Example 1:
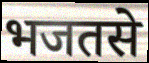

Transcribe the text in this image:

भजतसे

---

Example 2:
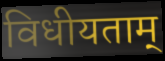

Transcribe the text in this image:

विधीयताम्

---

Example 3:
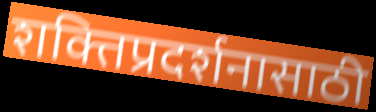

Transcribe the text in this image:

शक्तिप्रदर्शनासाठी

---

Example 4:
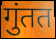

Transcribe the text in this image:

गुंतत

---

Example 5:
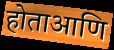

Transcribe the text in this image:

होताआणि